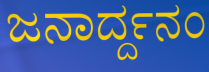
ಜನಾರ್ದ್ದನಂ